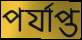
পৰ্যাপ্ত